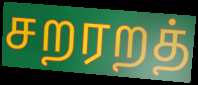
சறரறத்